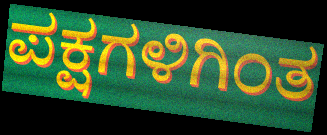
ಪಕ್ಷಗಳಿಗಿಂತ